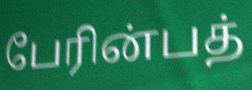
பேரின்பத்